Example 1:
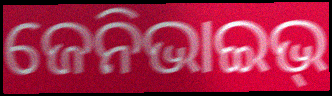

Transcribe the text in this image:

ଜେନିଭାଇଭ୍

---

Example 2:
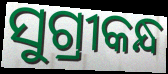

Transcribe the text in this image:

ସୁଗ୍ରୀକନ୍ଧ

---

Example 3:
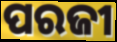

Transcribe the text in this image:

ପରଜୀ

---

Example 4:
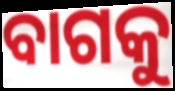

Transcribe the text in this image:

ବାଗକୁ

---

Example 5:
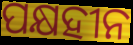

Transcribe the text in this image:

ପକ୍ଷହୀନ